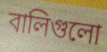
বালিগুলো